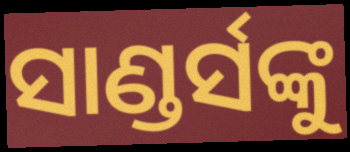
ସାଣ୍ଡର୍ସଙ୍କୁ